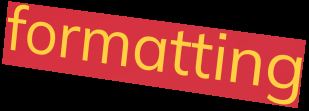
formatting